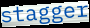
stagger